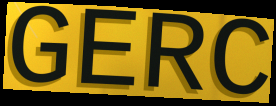
GERC